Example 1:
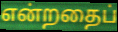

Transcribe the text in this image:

என்றதைப்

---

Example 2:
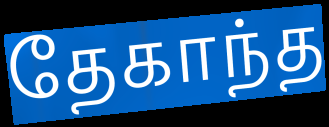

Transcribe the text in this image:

தேகாந்த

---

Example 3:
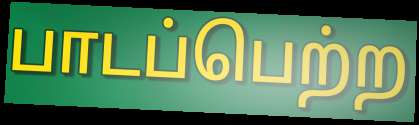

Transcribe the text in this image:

பாடப்பெற்ற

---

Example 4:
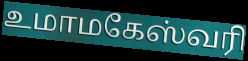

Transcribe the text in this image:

உமாமகேஸ்வரி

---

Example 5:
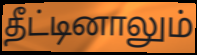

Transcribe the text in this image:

தீட்டினாலும்